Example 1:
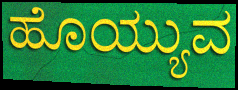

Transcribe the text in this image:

ಹೊಯ್ಯುವ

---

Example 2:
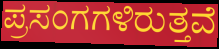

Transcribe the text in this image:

ಪ್ರಸಂಗಗಳಿರುತ್ತವೆ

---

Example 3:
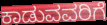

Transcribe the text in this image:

ಕಾಡುವವರಿಗೆ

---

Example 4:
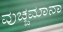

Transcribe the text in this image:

ವುಚ್ಚಮಾನಾ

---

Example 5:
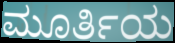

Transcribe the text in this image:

ಮೂರ್ತಿಯ